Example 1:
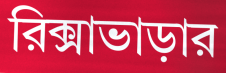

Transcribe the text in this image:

রিক্সাভাড়ার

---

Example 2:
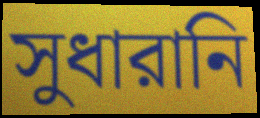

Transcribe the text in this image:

সুধারানি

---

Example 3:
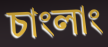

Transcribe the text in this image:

চাংলাং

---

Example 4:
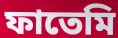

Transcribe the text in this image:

ফাতেমি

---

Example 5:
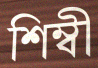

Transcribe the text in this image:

শিম্বী